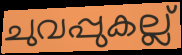
ചുവപ്പുകല്ല്